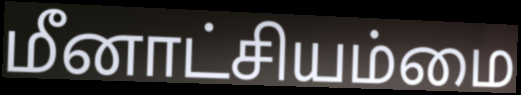
மீனாட்சியம்மை